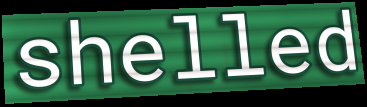
shelled